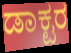
ಡಾಕ್ಟರ